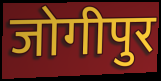
जोगीपुर